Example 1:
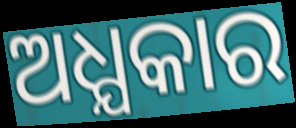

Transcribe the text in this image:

ଅଧ୍ଯକାର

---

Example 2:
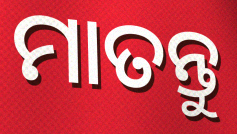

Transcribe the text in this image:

ମାତନ୍ତୁ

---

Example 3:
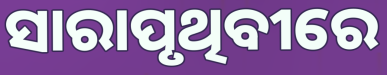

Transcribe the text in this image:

ସାରାପୃଥିବୀରେ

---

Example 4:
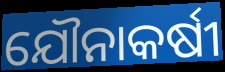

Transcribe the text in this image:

ଯୌନାକର୍ଷୀ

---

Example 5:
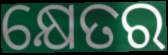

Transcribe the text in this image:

କ୍ଷେତର